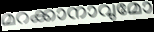
മറക്കാനാവുമോ